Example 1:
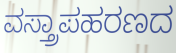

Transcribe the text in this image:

ವಸ್ತ್ರಾಪಹರಣದ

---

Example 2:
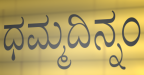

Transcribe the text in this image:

ಧಮ್ಮದಿನ್ನಂ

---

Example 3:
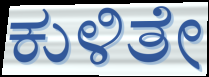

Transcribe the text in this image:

ಕುಳಿತೇ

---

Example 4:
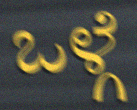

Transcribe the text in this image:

ಒಳ್ಗೆ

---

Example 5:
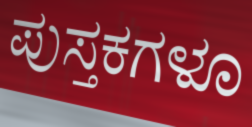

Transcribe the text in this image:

ಪುಸ್ತಕಗಳೂ